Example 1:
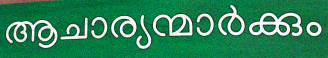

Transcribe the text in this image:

ആചാര്യന്മാർക്കും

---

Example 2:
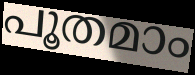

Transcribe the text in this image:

പൂതമാം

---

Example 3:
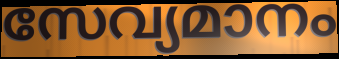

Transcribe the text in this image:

സേവ്യമാനം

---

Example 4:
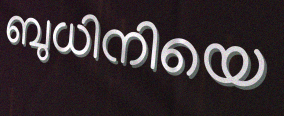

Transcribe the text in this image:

ബുധിനിയെ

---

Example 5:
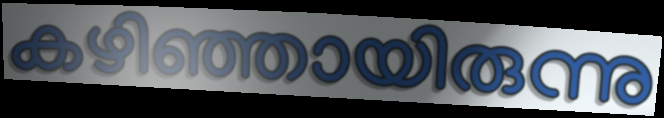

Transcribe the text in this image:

കഴിഞ്ഞായിരുന്നു